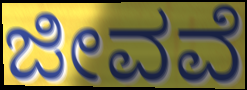
ಜೀವವೆ